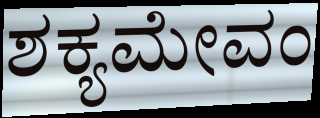
ಶಕ್ಯಮೇವಂ